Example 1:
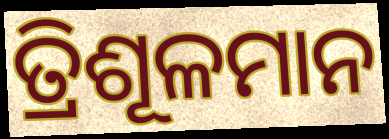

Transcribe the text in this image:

ତ୍ରିଶୂଳମାନ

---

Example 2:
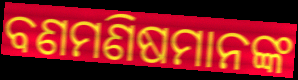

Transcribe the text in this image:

ବଣମଣିଷମାନଙ୍କ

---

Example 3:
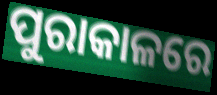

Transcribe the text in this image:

ପୁରାକାଳରେ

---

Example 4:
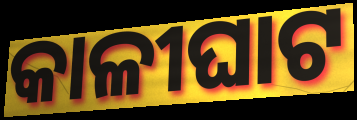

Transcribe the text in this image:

କାଳୀଘାଟ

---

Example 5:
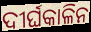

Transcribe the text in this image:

ଦୀର୍ଘକାଳିନ